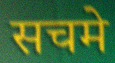
सचमे